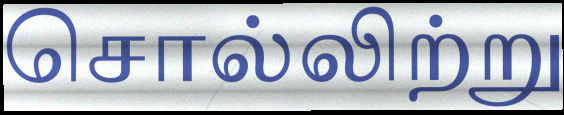
சொல்லிற்று